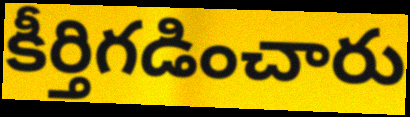
కీర్తిగడించారు